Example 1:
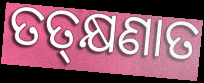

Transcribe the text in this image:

ତତ୍କ୍ଷଣାତ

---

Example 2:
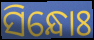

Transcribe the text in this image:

ସିନ୍ଧୋଃ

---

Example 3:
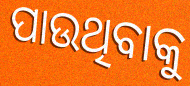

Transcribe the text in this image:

ପାଉଥିବାକୁ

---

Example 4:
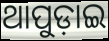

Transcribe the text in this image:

ଥାପୁଡ଼ାଇ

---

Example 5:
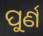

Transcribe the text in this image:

ପୁର୍ଣ